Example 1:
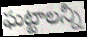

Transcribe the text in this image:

ఘట్టాలన్నీ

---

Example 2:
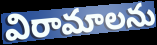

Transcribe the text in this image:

విరామాలను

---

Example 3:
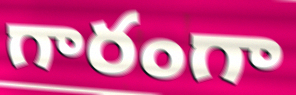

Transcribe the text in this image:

గారంగా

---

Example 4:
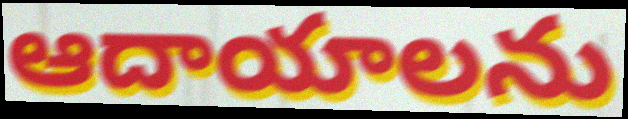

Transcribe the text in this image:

ఆదాయాలను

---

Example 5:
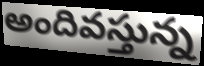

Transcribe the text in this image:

అందివస్తున్న